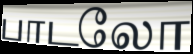
பாடலோ